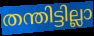
തന്തിട്ടില്ലാ